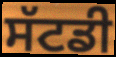
ਸੱਟਡੀ